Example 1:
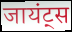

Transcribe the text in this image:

जायंट्स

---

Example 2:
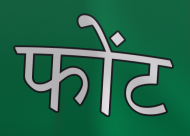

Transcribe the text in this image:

फोंट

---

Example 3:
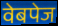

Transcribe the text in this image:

वेबपेज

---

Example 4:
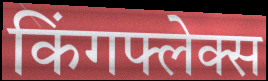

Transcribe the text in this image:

किंगफ्लेक्स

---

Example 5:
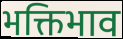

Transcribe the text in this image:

भक्तिभाव